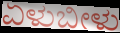
ಏಳುಬೀಳು